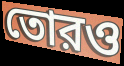
তোরও